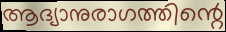
ആദ്യാനുരാഗത്തിന്റെ